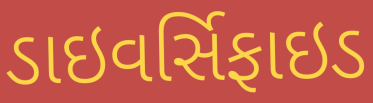
ડાઇવર્સિફાઇડ